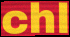
chl